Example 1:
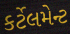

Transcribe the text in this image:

કર્ટેલમેન્ટ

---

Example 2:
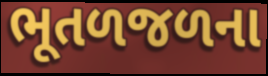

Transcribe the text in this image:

ભૂતળજળના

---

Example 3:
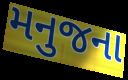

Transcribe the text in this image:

મનુજના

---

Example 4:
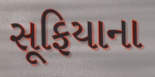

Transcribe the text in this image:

સૂફિયાના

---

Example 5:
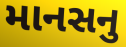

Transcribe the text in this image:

માનસનુ